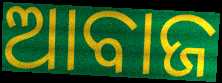
ଆବାଜ